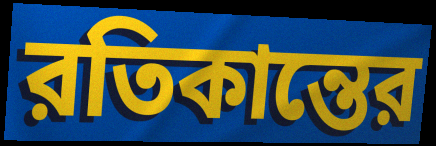
রতিকান্তের